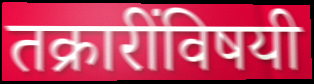
तक्रारींविषयी